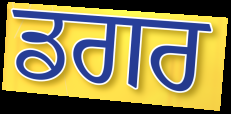
ਡਗਰ